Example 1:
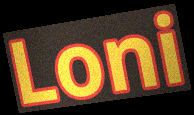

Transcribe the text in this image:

Loni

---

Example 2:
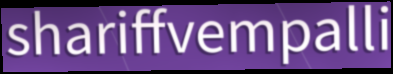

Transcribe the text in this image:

shariffvempalli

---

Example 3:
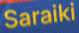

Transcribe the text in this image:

Saraiki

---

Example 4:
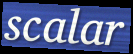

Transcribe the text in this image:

scalar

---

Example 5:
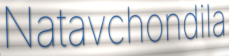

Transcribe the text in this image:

Natavchondila